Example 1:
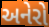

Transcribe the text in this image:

અનેરો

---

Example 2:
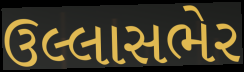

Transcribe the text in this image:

ઉલ્લાસભેર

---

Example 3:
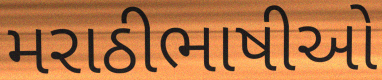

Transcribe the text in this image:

મરાઠીભાષીઓ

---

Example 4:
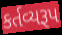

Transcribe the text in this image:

કર્તવ્યરૂપ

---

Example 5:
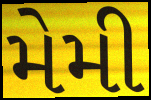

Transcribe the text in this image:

મેમી